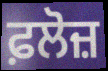
ਫ਼ਲੋਜ਼